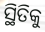
ସ୍ଥିତିକୁ